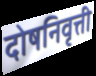
दोषनिवृत्ती